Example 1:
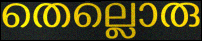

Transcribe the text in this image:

തെല്ലൊരു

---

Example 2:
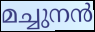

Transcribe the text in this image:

മച്ചുനൻ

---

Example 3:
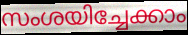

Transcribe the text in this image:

സംശയിച്ചേക്കാം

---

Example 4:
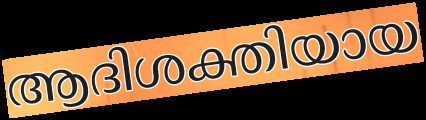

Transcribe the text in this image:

ആദിശക്തിയായ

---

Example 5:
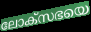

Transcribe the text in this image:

ലോക്സഭയെ